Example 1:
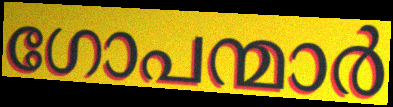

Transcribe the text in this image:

ഗോപന്മാർ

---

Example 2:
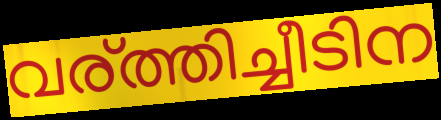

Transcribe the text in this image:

വര്ത്തിച്ചീടിന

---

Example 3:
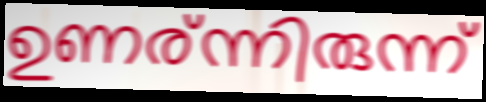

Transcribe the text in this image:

ഉണര്ന്നിരുന്ന്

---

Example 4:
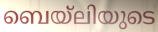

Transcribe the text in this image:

ബെയ്ലിയുടെ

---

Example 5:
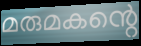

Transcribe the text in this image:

മരുമകന്റെ